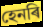
হেনৰি